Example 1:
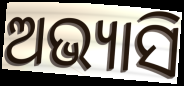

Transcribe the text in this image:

ଅଭ୍ୟାସି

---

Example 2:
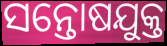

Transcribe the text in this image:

ସନ୍ତୋଷଯୁକ୍ତ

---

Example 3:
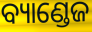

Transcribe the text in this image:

ବ୍ୟାଣ୍ଡେଜ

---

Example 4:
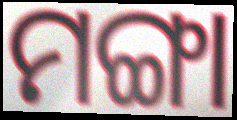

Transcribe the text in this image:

ମଙ୍ଗା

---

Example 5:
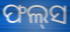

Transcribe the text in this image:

ଫଲ୍‍ସ